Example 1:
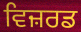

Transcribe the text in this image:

ਵਿਜ਼ਰਡ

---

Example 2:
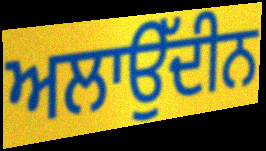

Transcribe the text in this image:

ਅਲਾਉੱਦੀਨ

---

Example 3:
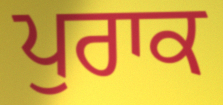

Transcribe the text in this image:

ਪੁਰਾਕ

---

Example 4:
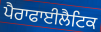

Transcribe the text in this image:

ਪੈਰਾਫਾਈਲੈਟਿਕ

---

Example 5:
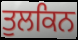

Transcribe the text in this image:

ਤੁਲਕਿਨ